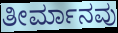
ತೀರ್ಮಾನವು